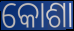
କୋଶା